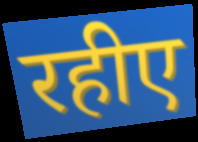
रहीए